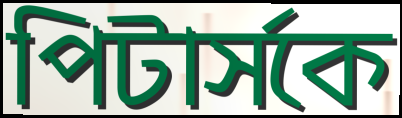
পিটার্সকে